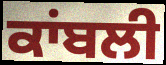
ਕਾਂਬਲੀ